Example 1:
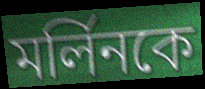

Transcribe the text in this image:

মর্লিনকে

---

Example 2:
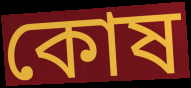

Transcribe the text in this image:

কোষ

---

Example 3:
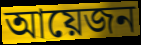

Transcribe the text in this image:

আয়েজন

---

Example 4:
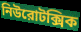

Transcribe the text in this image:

নিউরোটক্সিক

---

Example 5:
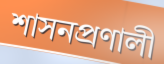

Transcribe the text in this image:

শাসনপ্রণালী